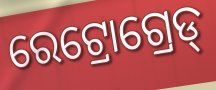
ରେଟ୍ରୋଗ୍ରେଡ୍